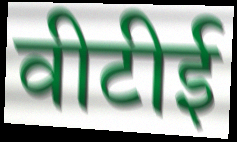
वीटीई